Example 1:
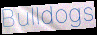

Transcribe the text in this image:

Bulldogs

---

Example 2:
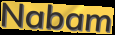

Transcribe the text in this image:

Nabam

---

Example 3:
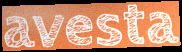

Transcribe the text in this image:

avesta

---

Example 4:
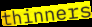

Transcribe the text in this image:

thinners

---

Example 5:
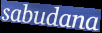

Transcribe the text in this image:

sabudana